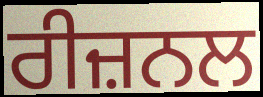
ਰੀਜ਼ਨਲ